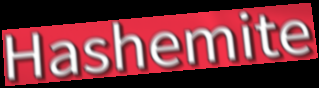
Hashemite